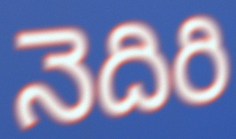
నెదిరి